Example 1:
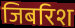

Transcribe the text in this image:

जिबरिश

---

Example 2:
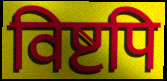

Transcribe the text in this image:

विष्टपि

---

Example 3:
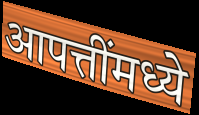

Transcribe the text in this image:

आपत्तींमध्ये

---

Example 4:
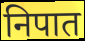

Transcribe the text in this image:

निपात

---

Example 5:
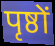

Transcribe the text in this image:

पृष्ठों